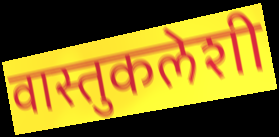
वास्तुकलेशी